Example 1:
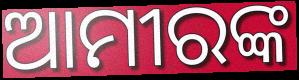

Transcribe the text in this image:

ଆମୀରଙ୍କ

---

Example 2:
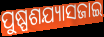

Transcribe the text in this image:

ପୁଷ୍ପଶଯ୍ୟାସଜାଇ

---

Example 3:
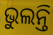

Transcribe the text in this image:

ଭୁଲନ୍ତି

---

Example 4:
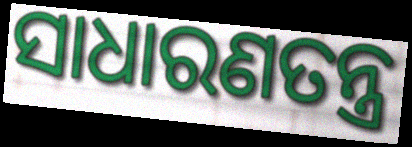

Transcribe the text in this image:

ସାଧାରଣତନ୍ତ୍ର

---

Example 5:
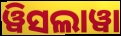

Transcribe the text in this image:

ୱିସଲାୱା